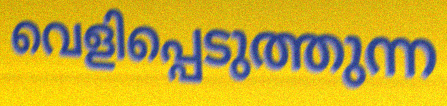
വെളിപ്പെടുത്തുന്ന